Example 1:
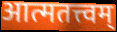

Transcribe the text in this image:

आत्मतत्त्वम्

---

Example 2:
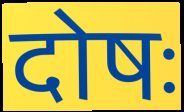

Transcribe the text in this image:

दोषः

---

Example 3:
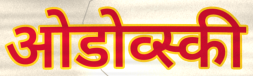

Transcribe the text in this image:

ओडोव्स्की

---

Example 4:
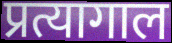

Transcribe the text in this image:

प्रत्यागाल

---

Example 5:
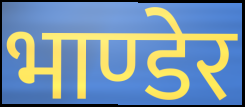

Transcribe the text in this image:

भाण्‍डेर